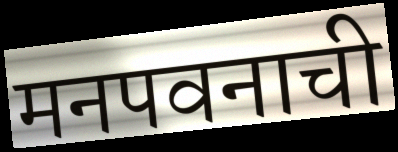
मनपवनाची